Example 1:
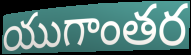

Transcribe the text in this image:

యుగాంతర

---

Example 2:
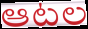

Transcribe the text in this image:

ఆటల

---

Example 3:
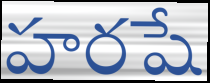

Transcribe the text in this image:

హరషే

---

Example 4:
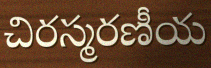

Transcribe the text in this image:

చిరస్మరణీయ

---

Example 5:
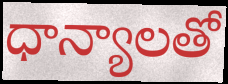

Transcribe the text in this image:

ధాన్యాలతో